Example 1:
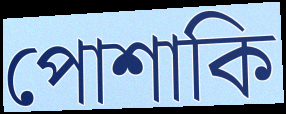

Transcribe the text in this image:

পোশাকি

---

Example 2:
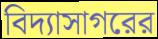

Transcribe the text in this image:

বিদ্যাসাগরের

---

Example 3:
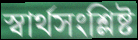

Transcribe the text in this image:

স্বার্থসংশ্লিষ্ট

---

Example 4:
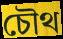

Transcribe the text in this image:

চৌথ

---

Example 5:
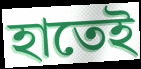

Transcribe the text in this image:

হাতেই